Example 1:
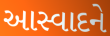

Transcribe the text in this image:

આસ્વાદને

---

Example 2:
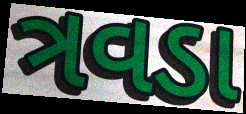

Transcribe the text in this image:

ત્રવડા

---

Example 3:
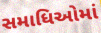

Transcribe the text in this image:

સમાધિઓમાં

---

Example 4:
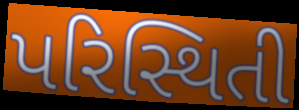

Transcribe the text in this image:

પરિસ્થિતી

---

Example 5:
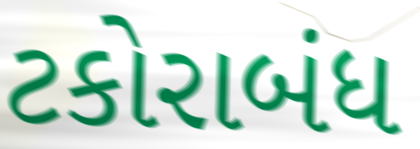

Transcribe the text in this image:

ટકોરાબંધ